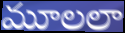
మూలలా